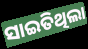
ସାଇତିଥିଲା